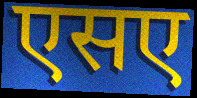
एसए